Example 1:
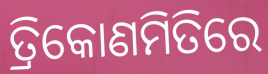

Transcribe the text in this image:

ତ୍ରିକୋଣମିତିରେ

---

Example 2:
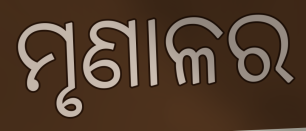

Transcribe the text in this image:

ମୃଣାଳର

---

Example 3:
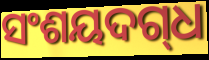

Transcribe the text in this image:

ସଂଶୟଦଗ୍‌ଧ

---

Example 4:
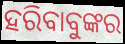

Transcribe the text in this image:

ହରିବାବୁଙ୍କର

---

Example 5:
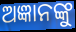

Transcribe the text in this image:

ଅଜ୍ଞାନଙ୍କୁ